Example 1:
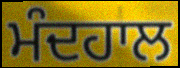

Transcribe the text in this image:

ਮੰਦਹਾਲ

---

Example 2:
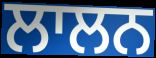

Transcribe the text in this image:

ਲਾਲਨ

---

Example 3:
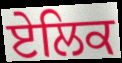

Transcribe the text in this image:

ਏਲਿਕ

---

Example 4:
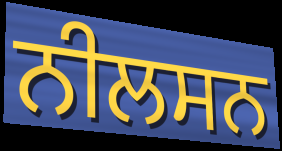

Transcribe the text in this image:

ਨੀਲਸਨ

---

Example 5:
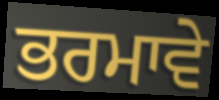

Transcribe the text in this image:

ਭਰਮਾਵੇ